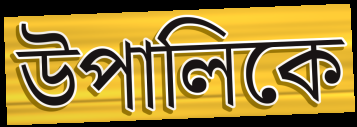
উপালিকে